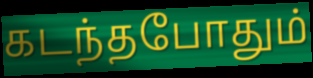
கடந்தபோதும்